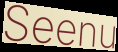
Seenu